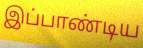
இப்பாண்டிய